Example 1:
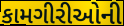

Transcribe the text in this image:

કામગીરીઓની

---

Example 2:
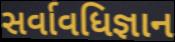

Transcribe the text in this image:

સર્વાવધિજ્ઞાન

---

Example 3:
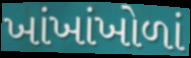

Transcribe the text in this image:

ખાંખાંખોળાં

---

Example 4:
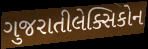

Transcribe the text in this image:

ગુજરાતીલેક્સિકોન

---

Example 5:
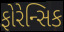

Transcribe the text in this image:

ફોરેન્સિક